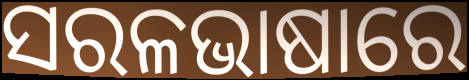
ସରଳଭାଷାରେ